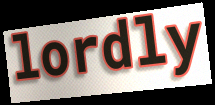
lordly